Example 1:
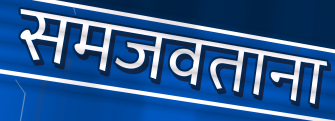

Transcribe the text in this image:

समजवताना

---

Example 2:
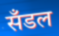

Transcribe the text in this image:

सँडल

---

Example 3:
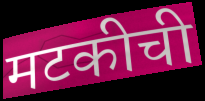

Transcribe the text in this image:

मटकीची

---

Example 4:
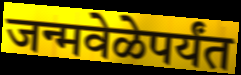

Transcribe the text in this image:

जन्मवेळेपर्यंत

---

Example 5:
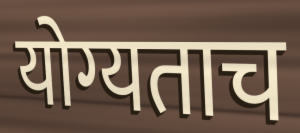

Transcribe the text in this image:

योग्यताच